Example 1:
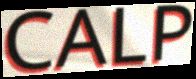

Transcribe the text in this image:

CALP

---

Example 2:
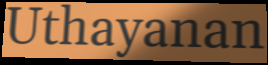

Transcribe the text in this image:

Uthayanan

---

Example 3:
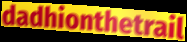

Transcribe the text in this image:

dadhionthetrail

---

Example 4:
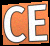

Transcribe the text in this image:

CE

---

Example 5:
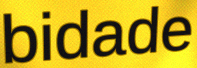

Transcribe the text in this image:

bidade